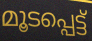
മൂടപ്പെട്ട്